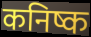
कनिष्क